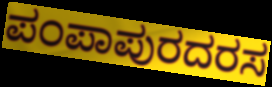
ಪಂಪಾಪುರದರಸ